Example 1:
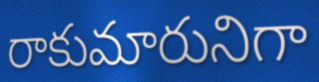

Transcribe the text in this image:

రాకుమారునిగా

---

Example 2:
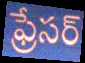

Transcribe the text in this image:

ఫ్రేసర్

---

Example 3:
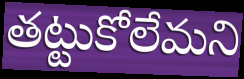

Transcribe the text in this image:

తట్టుకోలేమని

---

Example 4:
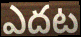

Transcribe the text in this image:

ఎదట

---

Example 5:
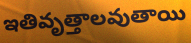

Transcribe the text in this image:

ఇతివృత్తాలవుతాయి